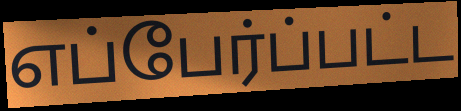
எப்பேர்ப்பட்ட